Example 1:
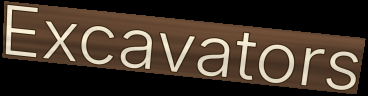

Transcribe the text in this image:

Excavators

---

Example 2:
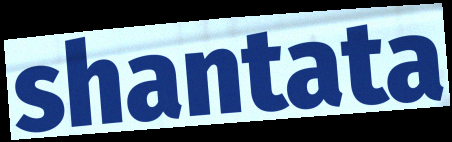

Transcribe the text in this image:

shantata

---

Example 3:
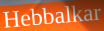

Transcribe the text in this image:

Hebbalkar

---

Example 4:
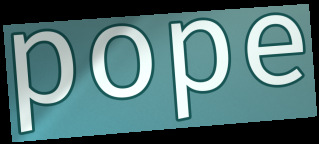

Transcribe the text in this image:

pope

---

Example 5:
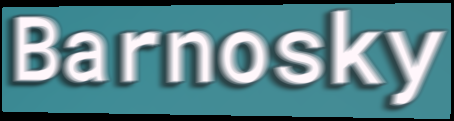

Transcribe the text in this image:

Barnosky